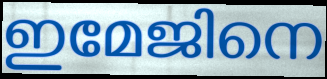
ഇമേജിനെ